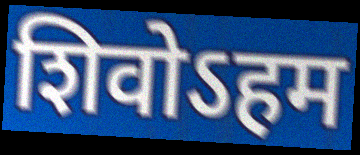
शिवोऽहम